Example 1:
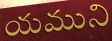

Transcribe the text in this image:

యముని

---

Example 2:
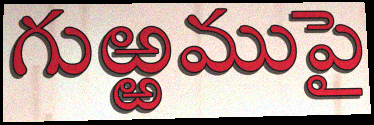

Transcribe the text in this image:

గుఱ్ఱముపై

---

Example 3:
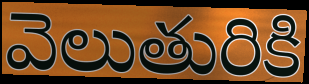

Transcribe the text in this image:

వెలుతురికి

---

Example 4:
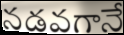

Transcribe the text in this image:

నడవగానే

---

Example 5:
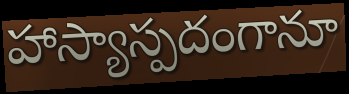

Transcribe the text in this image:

హాస్యాస్పదంగానూ